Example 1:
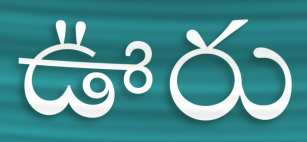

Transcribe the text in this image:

ఊరు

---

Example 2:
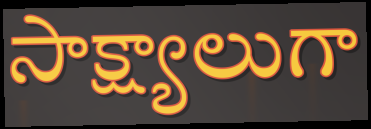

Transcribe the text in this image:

సాక్ష్యాలుగా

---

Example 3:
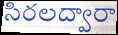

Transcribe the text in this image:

సిరలద్వారా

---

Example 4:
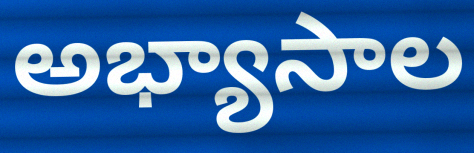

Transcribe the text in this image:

అభ్యాసాల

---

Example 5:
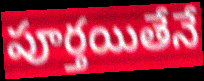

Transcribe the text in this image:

పూర్తయితేనే